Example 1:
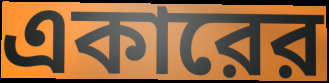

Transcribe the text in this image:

একারের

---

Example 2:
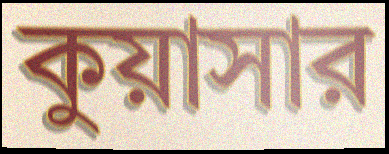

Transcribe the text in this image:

কুয়াসার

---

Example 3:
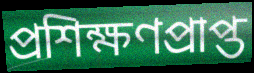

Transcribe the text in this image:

প্রশিক্ষণপ্রাপ্ত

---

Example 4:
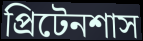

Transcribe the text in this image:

প্রিটেনশাস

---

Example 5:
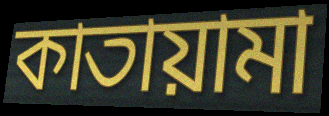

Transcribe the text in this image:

কাতায়ামা